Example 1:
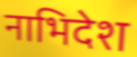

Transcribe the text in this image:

नाभिदेश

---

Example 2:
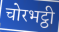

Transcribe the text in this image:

चोरभट्ठी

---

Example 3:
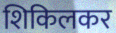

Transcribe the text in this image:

शिकिलकर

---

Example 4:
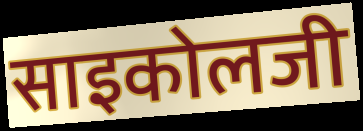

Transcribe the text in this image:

साइकोलजी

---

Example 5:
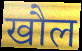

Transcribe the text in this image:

खौल